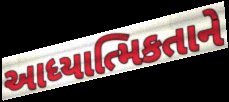
આધ્યાત્મિકતાને